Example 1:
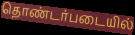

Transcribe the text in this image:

தொண்டர்படையில்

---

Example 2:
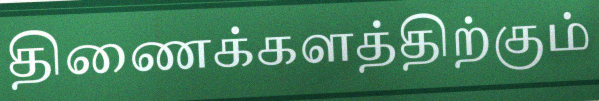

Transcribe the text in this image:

திணைக்களத்திற்கும்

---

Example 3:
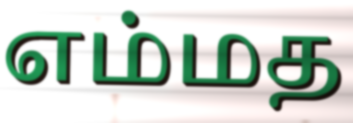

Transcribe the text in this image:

எம்மத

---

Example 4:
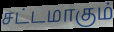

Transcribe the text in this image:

சட்டமாகும்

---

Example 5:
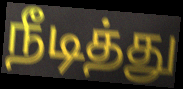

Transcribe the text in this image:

நீடித்து